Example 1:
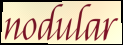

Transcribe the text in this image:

nodular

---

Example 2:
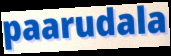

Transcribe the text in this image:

paarudala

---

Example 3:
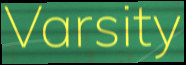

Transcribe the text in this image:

Varsity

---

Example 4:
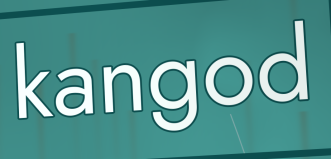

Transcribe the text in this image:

kangod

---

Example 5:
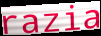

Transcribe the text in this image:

razia